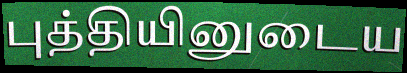
புத்தியினுடைய